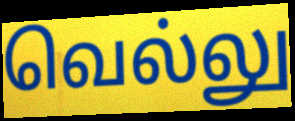
வெல்லு